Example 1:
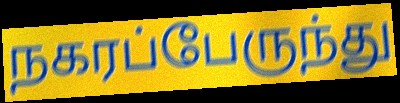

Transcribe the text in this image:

நகரப்பேருந்து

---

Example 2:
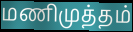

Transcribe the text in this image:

மணிமுத்தம்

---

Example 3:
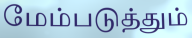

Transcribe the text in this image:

மேம்படுத்தும்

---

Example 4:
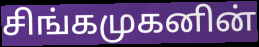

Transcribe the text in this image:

சிங்கமுகனின்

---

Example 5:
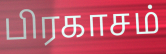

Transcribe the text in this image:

பிரகாசம்